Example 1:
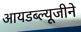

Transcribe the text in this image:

आयडब्ल्यूजीने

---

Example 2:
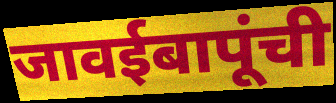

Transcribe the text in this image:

जावईबापूंची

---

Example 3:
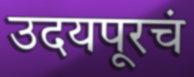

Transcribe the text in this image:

उदयपूरचं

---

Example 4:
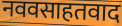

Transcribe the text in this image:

नववसाहतवाद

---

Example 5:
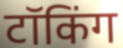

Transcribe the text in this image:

टॉकिंग